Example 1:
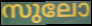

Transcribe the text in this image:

സുലോ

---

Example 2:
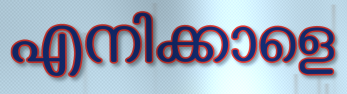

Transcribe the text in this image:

എനിക്കാളെ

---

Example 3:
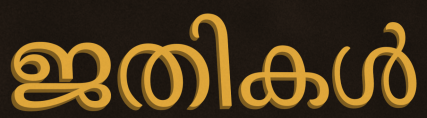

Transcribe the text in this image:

ജതികൾ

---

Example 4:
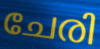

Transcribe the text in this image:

ചേരി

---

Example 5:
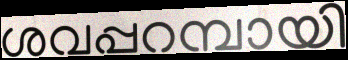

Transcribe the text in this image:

ശവപ്പറമ്പായി